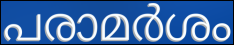
പരാമർശം